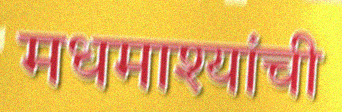
मधमाश्‍यांची